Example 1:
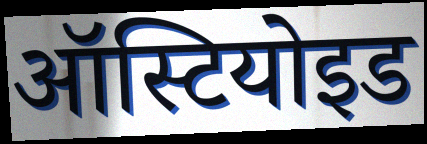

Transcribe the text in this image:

ऑस्टियोइड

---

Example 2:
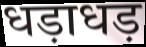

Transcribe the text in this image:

धड़ाधड़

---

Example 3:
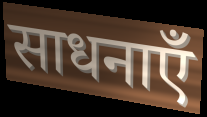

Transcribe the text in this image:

साधनाएँ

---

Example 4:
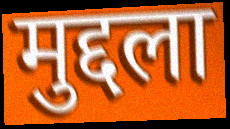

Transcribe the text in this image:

मुद्दला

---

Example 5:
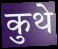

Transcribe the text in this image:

कुथे